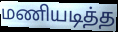
மணியடித்த